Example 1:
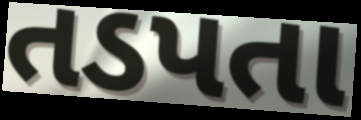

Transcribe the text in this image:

તડપતા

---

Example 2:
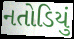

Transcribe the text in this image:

નતોડિયું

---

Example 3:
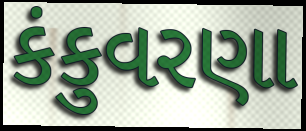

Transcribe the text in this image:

કંકુવરણા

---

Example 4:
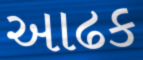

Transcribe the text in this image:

આઢક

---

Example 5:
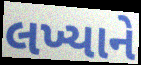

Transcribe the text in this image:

લખ્યાને